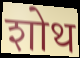
शोथ